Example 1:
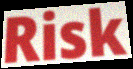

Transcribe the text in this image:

Risk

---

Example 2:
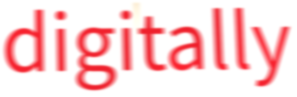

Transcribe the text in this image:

digitally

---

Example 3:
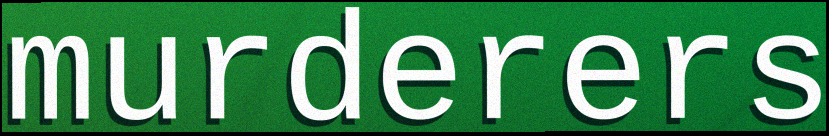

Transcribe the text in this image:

murderers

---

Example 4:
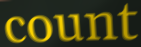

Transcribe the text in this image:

count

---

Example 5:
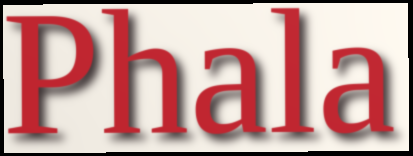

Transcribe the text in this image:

Phala